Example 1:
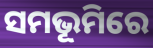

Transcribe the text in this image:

ସମଭୂମିରେ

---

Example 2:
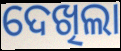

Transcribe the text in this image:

ଦେଖିଲା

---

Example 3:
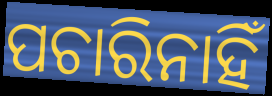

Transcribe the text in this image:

ପଚାରିନାହିଁ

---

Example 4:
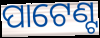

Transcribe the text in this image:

ପାଟେଣ୍ଟ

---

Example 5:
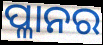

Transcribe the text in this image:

ପ୍ଳାନର